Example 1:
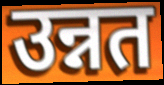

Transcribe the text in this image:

उन्नत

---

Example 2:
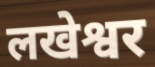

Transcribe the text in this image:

लखेश्वर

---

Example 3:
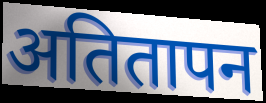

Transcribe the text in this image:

अतितापन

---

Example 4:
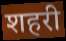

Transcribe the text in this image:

शहरी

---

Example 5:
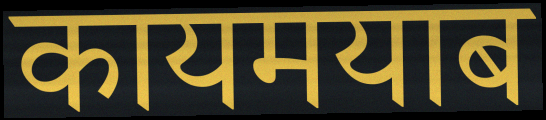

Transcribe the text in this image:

कायमयाब